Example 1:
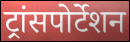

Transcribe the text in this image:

ट्रांसपोर्टेशन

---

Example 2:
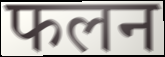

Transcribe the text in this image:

फलन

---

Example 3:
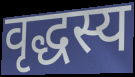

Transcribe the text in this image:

वृद्धस्य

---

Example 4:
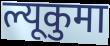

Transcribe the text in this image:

ल्यूकुमा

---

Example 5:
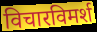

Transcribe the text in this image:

विचारविमर्श